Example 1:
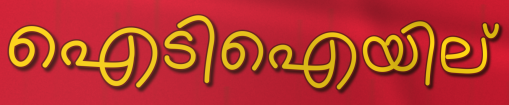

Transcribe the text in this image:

ഐടിഐയില്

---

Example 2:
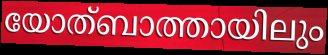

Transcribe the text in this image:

യോത്ബാത്തായിലും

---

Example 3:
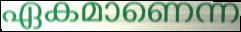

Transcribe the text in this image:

ഏകമാണെന്ന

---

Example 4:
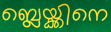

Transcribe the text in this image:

ബ്ലെയ്ക്കിനെ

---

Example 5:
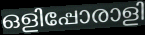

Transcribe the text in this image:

ഒളിപ്പോരാളി